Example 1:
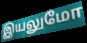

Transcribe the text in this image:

இயலுமோ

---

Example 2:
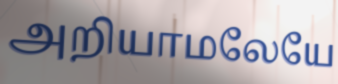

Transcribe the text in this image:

அறியாமலேயே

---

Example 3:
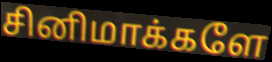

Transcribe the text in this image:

சினிமாக்களே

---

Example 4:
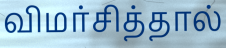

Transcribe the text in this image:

விமர்சித்தால்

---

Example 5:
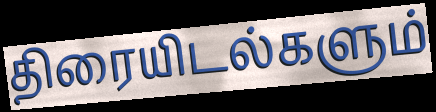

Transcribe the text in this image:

திரையிடல்களும்